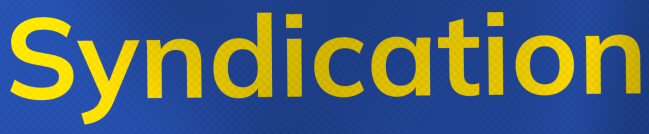
Syndication